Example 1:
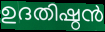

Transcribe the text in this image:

ഉദതിഷ്ഠൻ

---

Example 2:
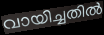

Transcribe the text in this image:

വായിച്ചതിൽ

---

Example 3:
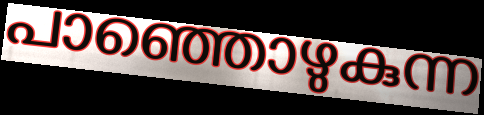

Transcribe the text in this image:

പാഞ്ഞൊഴുകുന്ന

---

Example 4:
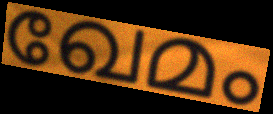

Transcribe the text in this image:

ഖേമം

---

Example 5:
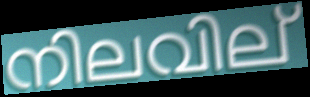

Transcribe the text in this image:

നിലവില്